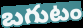
బగుటం